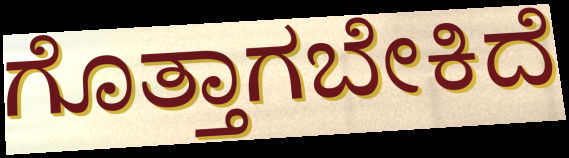
ಗೊತ್ತಾಗಬೇಕಿದೆ